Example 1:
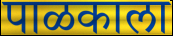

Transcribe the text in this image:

पाळकाला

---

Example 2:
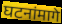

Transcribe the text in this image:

घटनांमागे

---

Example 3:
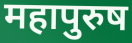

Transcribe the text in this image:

महापुरुष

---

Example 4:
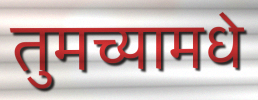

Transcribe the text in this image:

तुमच्यामधे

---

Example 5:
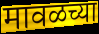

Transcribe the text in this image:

मावळच्या